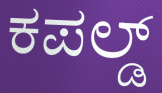
ಕಪಲ್ಡ್